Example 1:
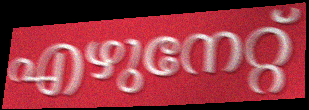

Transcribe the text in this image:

എഴുനേറ്റ്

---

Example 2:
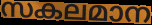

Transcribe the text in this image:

സകലമാന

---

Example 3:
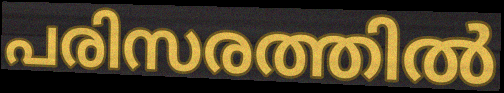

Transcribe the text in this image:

പരിസരത്തിൽ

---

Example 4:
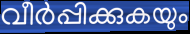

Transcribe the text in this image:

വീർപ്പിക്കുകയും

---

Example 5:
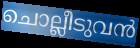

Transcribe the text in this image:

ചൊല്ലീടുവൻ